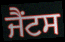
ਜੈਂਟਸ